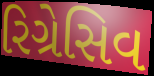
રિગ્રેસિવ